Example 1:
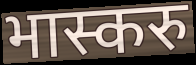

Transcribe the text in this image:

भास्करु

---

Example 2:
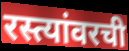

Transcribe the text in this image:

रस्त्यांवरची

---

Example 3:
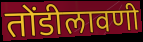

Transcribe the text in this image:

तोंडीलावणी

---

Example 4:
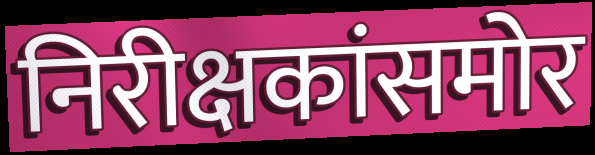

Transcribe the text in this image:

निरीक्षकांसमोर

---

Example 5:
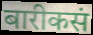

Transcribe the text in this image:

बारीकसं